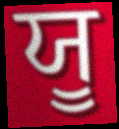
ਯੂ